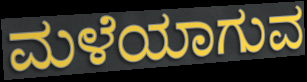
ಮಳೆಯಾಗುವ